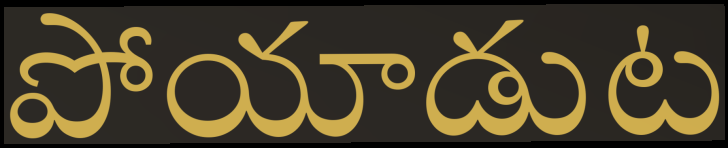
పోయాడుట